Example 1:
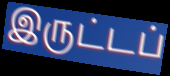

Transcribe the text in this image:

இருட்டப்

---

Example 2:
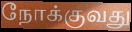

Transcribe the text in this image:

நோக்குவது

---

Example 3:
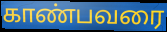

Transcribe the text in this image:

காண்பவரை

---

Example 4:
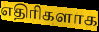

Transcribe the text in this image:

எதிரிகளாக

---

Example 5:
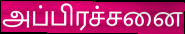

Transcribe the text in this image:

அப்பிரச்சனை